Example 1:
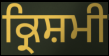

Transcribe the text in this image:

ਕ੍ਰਿਸ਼ਮੀ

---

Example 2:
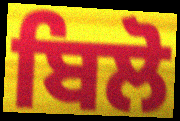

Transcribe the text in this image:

ਬਿਲੋ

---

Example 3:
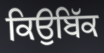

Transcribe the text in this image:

ਕਿਉਬਿੱਕ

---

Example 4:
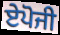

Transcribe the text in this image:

ਏਪੋਜੀ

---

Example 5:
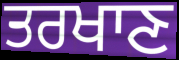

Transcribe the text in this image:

ਤਰਖਾਣ